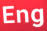
Eng